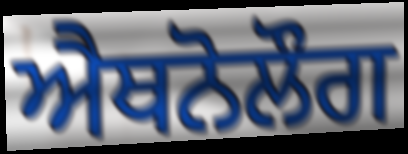
ਐਥਨੋਲੌਗ